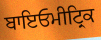
ਬਾਇਓਮੀਟ੍ਰਿਕ